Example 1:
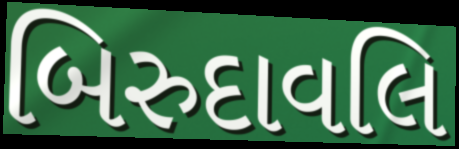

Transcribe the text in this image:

બિરુદાવલિ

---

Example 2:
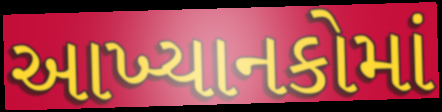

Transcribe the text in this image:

આખ્યાનકોમાં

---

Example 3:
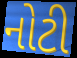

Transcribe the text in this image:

નોટી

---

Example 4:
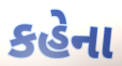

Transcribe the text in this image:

કહેના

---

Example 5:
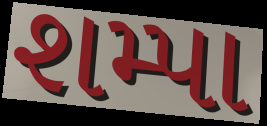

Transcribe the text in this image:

શમ્પા